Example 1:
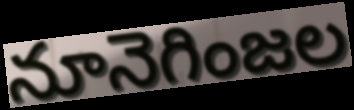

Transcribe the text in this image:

నూనెగింజల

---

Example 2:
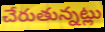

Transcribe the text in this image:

చేరుతున్నట్లు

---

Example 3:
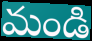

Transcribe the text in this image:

మండి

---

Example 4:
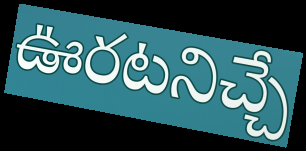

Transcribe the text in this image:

ఊరటనిచ్చే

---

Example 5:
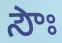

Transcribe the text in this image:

సౌః